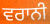
ਵਰਾਨੀ